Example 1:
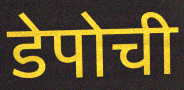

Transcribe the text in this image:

डेपोची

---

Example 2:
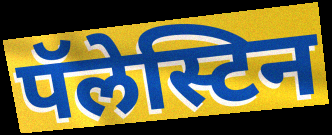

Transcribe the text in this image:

पॅलेस्टिन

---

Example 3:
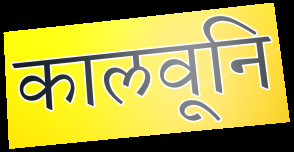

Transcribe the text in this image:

कालवूनि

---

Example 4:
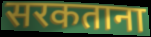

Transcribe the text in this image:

सरकताना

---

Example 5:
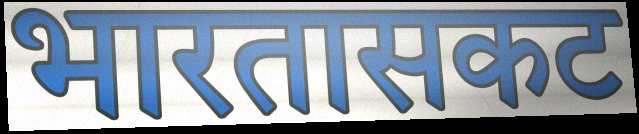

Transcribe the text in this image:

भारतासकट